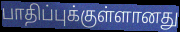
பாதிப்புக்குள்ளானது